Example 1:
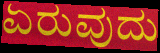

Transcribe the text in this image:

ಏರುವುದು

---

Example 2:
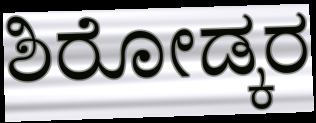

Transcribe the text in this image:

ಶಿರೋಡ್ಕರ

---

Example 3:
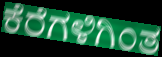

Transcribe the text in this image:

ಕೆರೆಗಳಿಗಿಂತ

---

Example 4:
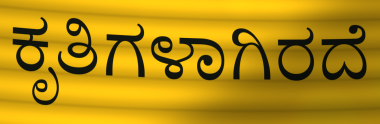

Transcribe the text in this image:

ಕೃತಿಗಳಾಗಿರದೆ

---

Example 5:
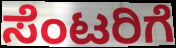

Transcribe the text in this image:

ಸೆಂಟರಿಗೆ